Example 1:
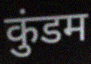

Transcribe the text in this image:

कुंडम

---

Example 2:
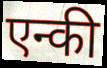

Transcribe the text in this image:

एन्की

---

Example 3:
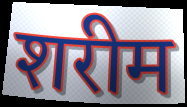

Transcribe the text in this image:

शरीम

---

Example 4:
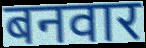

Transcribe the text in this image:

बनवार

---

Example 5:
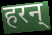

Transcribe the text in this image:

हरन्